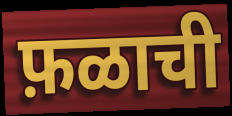
फ़ळाची